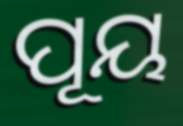
ପୂୟ